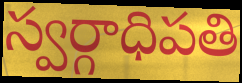
స్వర్గాధిపతి